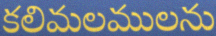
కలిమలములను